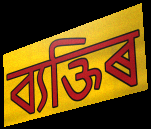
ব্যক্তিৰ